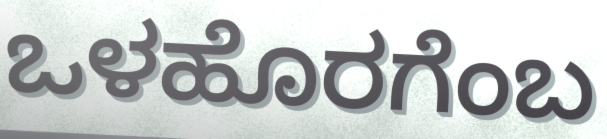
ಒಳಹೊರಗೆಂಬ